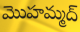
మొహమ్మద్